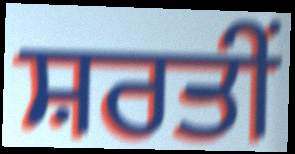
ਸ਼ਰਤੀਂ